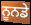
ਨੂਨਡੇ